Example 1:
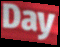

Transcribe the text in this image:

Day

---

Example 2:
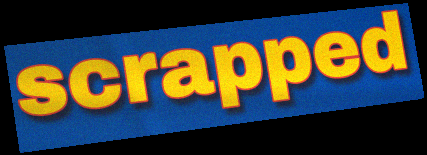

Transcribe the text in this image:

scrapped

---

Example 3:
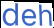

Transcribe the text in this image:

deh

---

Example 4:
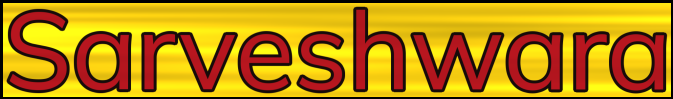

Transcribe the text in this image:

Sarveshwara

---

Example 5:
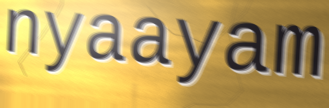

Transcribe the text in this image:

nyaayam